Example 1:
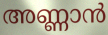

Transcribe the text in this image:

അണ്ണാൻ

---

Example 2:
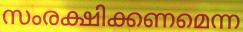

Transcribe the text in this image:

സംരക്ഷിക്കണമെന്ന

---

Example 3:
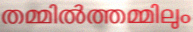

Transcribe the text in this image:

തമ്മിൽത്തമ്മിലും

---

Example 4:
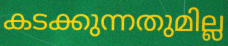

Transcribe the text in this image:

കടക്കുന്നതുമില്ല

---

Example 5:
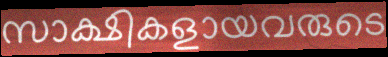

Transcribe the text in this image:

സാക്ഷികളായവരുടെ